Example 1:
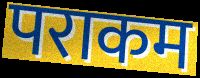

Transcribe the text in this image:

पराकम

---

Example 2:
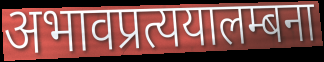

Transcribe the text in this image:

अभावप्रत्ययालम्बना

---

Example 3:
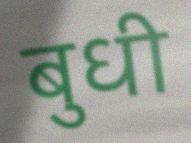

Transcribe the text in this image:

बुधी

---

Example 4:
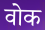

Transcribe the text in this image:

वोक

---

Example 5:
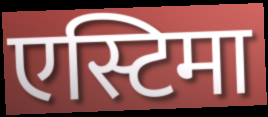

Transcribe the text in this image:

एस्टिमा